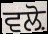
ਵਲ਼ੋ